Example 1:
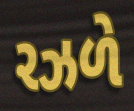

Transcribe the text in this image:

રઝળે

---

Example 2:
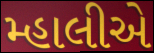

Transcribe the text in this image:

મ્હાલીએ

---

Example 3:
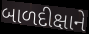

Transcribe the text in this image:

બાળદીક્ષાને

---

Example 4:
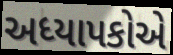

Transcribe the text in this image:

અધ્યાપકોએ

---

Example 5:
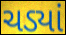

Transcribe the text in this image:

ચડ્યાં